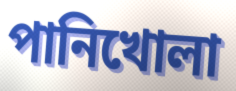
পানিখোলা